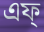
এফ্